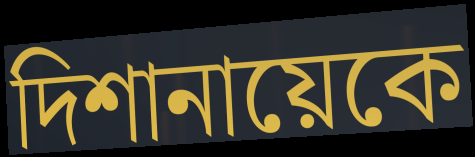
দিশানায়েকে